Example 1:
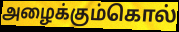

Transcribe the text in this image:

அழைக்கும்கொல்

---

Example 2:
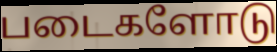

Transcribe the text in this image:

படைகளோடு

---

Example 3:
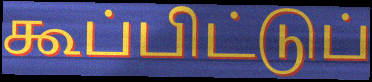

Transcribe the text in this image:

கூப்பிட்டுப்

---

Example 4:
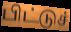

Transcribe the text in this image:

பிட்டுச்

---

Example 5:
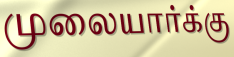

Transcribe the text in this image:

முலையார்க்கு